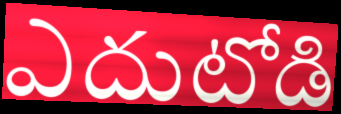
ఎదుటోడి